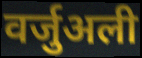
वर्जुअली